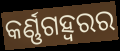
କର୍ଣ୍ଣଗହ୍ୱରର